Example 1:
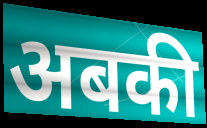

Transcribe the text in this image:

अबकी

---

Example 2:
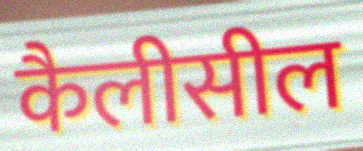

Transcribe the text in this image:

कैलीसील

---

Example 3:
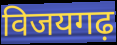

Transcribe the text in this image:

विजयगढ़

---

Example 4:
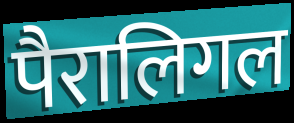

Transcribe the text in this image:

पैरालिगल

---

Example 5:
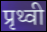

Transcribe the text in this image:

प्रृथ्वी